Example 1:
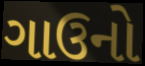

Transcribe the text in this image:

ગાઉનો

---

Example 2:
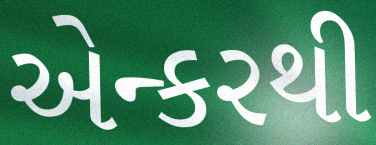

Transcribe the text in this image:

એન્કરથી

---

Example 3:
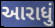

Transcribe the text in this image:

આરાધું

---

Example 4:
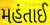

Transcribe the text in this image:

મહંતાઈ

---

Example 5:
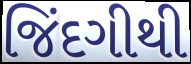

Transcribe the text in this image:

જિંદગીથી